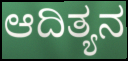
ಆದಿತ್ಯನ